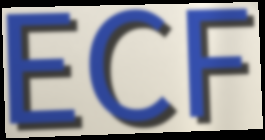
ECF